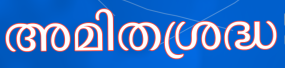
അമിതശ്രദ്ധ